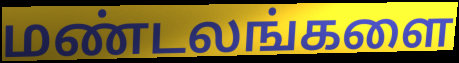
மண்டலங்களை